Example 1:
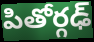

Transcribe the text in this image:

పితోర్గఢ్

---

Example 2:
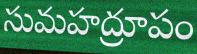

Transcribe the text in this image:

సుమహద్రూపం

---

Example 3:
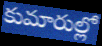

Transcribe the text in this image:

కుమారుల్లో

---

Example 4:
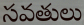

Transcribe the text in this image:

సవతులు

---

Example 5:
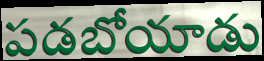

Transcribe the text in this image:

పడబోయాడు